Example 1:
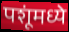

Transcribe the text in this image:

पशूंमध्ये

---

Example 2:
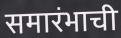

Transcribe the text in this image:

समारंभाची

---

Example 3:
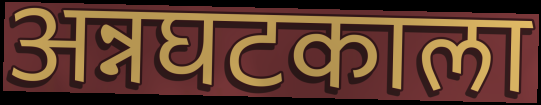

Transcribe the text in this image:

अन्नघटकाला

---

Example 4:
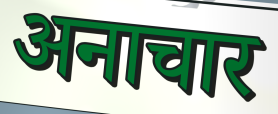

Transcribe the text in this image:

अनाचार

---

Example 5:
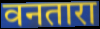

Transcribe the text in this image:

वनतारा